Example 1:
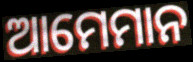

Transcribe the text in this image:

ଆମେମାନ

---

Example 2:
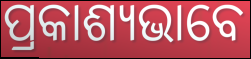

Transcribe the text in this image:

ପ୍ରକାଶ୍ୟଭାବେ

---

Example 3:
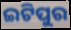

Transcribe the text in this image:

ଇଟିପୁର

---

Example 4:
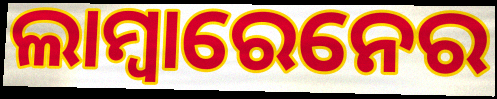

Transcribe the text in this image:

ଲାମ୍ବାରେନେର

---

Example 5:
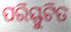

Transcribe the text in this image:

ପରିସ୍ଫୁଟିତ